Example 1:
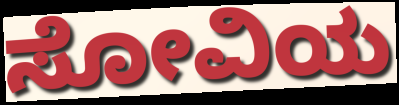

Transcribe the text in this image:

ಸೋವಿಯ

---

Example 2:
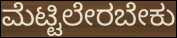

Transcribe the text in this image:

ಮೆಟ್ಟಿಲೇರಬೇಕು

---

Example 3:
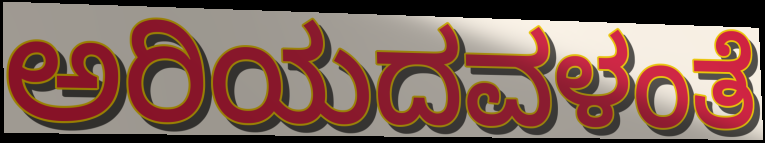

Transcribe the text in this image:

ಅರಿಯದವಳಂತೆ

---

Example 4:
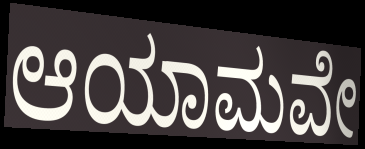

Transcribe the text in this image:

ಆಯಾಮವೇ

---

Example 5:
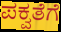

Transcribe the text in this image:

ಪಕ್ವತೆಗೆ